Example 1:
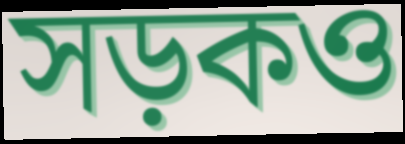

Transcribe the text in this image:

সড়কও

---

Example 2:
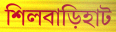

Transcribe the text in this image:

শিলবাড়িহাট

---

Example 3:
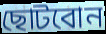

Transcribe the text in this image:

ছোটবোন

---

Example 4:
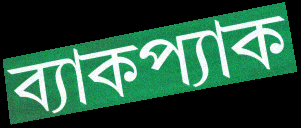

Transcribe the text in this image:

ব্যাকপ্যাক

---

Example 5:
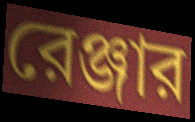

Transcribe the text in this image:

রেঞ্জার